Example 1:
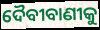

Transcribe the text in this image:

ଦୈବୀବାଣୀକୁ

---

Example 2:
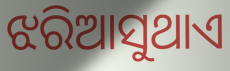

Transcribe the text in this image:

ଝରିଆସୁଥାଏ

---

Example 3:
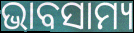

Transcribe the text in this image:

ଭାବସାମ୍ୟ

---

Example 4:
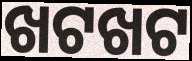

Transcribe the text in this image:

ଖଟଖଟ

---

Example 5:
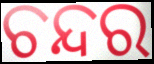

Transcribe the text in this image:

ଚନ୍ଦର